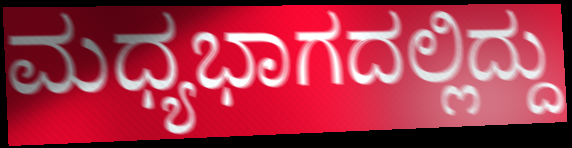
ಮಧ್ಯಭಾಗದಲ್ಲಿದ್ದು